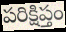
పరిక్షిప్తం